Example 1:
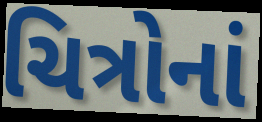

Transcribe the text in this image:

ચિત્રોનાં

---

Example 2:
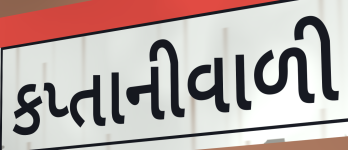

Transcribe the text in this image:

કપ્તાનીવાળી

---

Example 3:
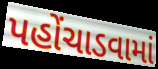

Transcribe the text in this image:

પહોંચાડવામાં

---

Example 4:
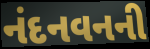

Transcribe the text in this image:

નંદનવનની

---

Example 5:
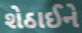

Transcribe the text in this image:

શેઠાઈને